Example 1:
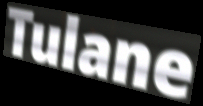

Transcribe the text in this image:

Tulane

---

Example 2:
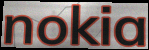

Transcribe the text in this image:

nokia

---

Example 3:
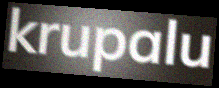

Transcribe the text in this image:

krupalu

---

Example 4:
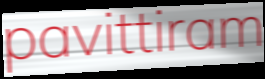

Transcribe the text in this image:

pavittiram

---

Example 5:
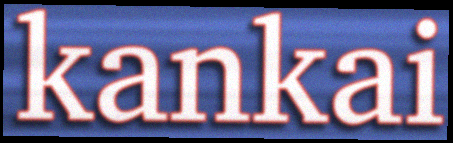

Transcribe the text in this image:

kankai